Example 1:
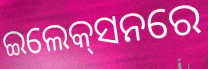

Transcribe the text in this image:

ଇଲେକ୍‍ସନରେ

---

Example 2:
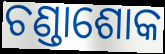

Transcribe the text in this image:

ଚଣ୍ଡାଶୋକ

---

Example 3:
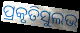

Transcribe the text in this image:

ପ୍ରକୃତିସୁଲଭ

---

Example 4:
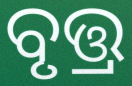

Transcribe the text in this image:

ବୃତ୍ତ୍ର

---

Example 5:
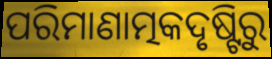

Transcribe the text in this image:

ପରିମାଣାତ୍ମକଦୃଷ୍ଟିରୁ